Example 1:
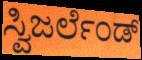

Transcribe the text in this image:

ಸ್ವಿಜರ್ಲೆಂಡ್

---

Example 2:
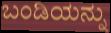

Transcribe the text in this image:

ಬಂಡಿಯನ್ನು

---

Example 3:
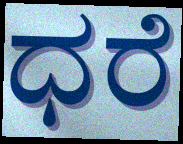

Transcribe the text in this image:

ಧರೆ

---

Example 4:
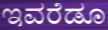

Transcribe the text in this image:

ಇವರೆಡೂ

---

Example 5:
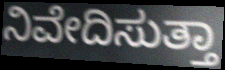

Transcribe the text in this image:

ನಿವೇದಿಸುತ್ತಾ